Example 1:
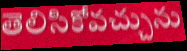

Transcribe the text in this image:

తెలిసికోవచ్చును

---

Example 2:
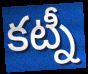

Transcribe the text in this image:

కట్నీ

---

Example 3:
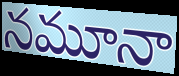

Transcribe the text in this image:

నమూనా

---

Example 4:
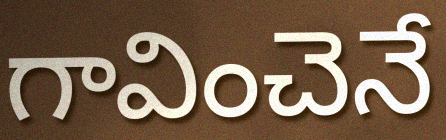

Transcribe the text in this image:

గావించెనే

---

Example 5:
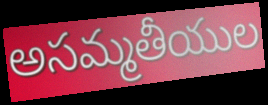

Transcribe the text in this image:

అసమ్మతీయుల